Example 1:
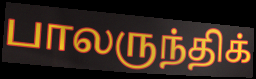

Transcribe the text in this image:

பாலருந்திக்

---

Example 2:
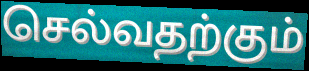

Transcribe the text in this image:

செல்வதற்கும்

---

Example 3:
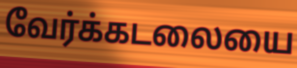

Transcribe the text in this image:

வேர்க்கடலையை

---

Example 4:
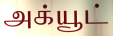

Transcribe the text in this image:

அக்யூட்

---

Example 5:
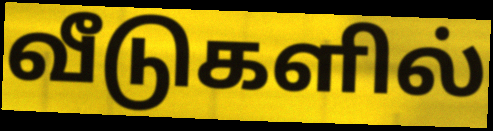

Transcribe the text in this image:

வீடுகளில்